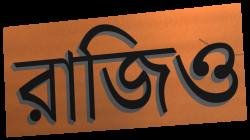
রাজিও